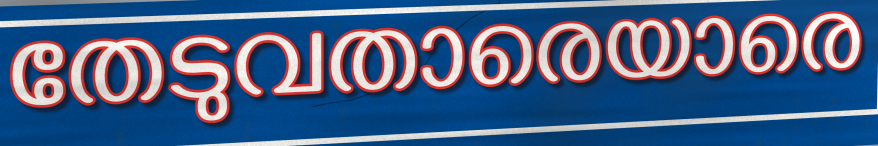
തേടുവതാരെയാരെ